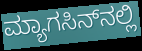
ಮ್ಯಾಗಸಿನ್‍ನಲ್ಲಿ